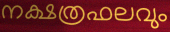
നക്ഷത്രഫലവും